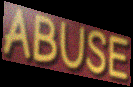
ABUSE